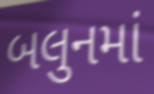
બલુનમાં